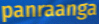
panraanga